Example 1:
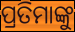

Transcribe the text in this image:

ପ୍ରତିମାଙ୍କୁ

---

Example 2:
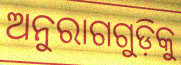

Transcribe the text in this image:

ଅନୁରାଗଗୁଡ଼ିକୁ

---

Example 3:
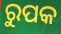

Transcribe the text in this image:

ରୁପକ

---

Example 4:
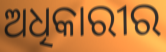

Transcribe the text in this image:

ଅଧିକାରୀର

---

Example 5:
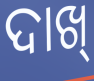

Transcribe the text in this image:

ଦାଖ୍